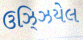
ઉઝ્ઝિયેલ